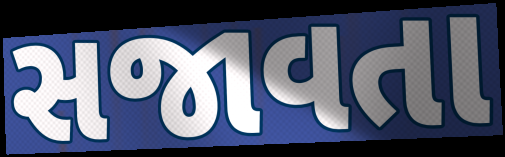
સજાવતા